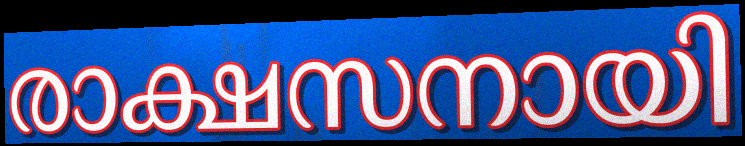
രാക്ഷസനായി